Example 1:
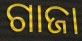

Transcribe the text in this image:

ଗାଜା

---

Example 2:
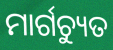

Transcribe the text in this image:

ମାର୍ଗଚ୍ୟୁତ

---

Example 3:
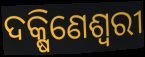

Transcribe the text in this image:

ଦକ୍ଷିଣେଶ୍ଵରୀ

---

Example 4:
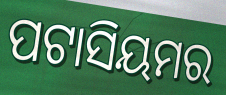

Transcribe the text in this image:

ପଟାସିୟମର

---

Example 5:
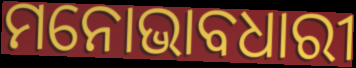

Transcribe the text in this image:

ମନୋଭାବଧାରୀ